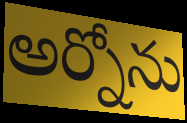
అర్నోను